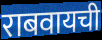
राबवायची